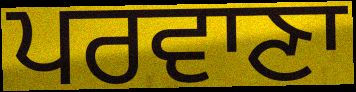
ਪਰਵਾਣਾ